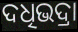
ଦଧିଭଦ୍ରା